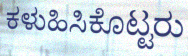
ಕಳುಹಿಸಿಕೊಟ್ಟರು